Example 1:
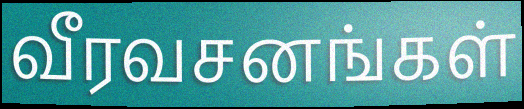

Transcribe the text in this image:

வீரவசனங்கள்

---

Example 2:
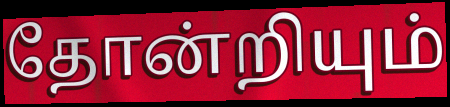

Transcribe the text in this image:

தோன்றியும்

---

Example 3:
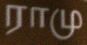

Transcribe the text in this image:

ராமு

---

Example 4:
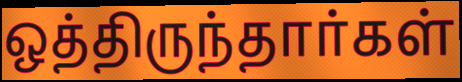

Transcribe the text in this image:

ஒத்திருந்தார்கள்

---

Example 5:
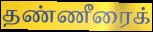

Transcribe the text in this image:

தண்ணீரைக்